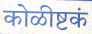
कोळीष्टकं